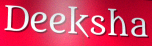
Deeksha